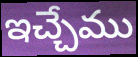
ఇచ్చేము